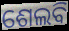
ଶେଲବି